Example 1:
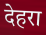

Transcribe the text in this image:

देहरा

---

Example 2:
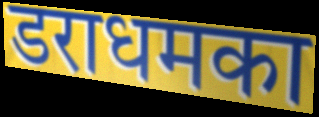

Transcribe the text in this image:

डराधमका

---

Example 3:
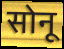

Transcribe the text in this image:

सोनू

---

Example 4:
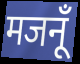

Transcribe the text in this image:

मजनूँ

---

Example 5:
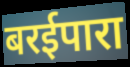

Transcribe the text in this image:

बरईपारा